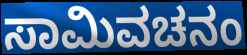
ಸಾಮಿವಚನಂ